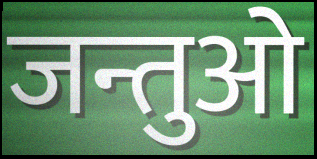
जन्तुओ